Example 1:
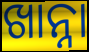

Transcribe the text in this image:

ଖାନ୍ନା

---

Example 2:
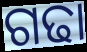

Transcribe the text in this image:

ଗଢା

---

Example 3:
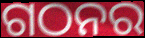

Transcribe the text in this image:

ଗଠନର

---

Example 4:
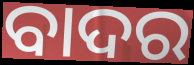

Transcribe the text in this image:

ବାଦର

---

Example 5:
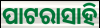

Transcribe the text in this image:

ପାଟରାସାହି